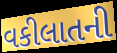
વકીલાતની